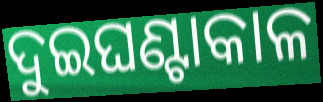
ଦୁଇଘଣ୍ଟାକାଳ